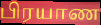
பிரயாண